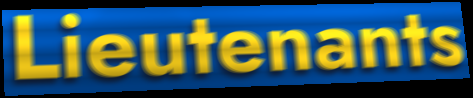
Lieutenants